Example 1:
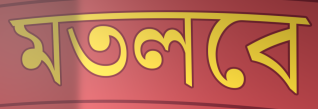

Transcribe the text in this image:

মতলবে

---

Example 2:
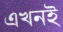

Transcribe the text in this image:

এখনই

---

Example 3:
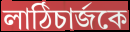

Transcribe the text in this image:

লাঠিচার্জকে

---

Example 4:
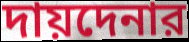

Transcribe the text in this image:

দায়দেনার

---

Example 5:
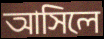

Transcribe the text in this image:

আসিলে